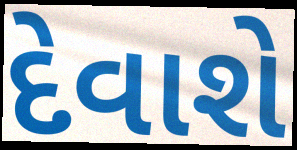
દેવાશે